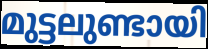
മുട്ടലുണ്ടായി